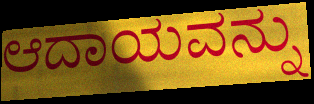
ಆದಾಯವನ್ನು